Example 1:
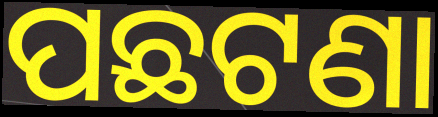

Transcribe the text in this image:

ପଛଟଣା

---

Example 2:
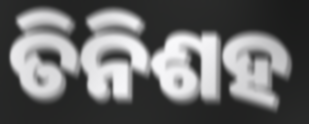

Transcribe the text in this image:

ତିନିଶହ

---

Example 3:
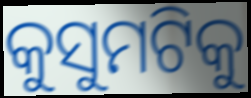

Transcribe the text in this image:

କୁସୁମଟିକୁ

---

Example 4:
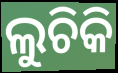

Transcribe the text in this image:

ଲୁଚିକି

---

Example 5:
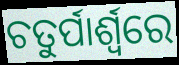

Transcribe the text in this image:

ଚତୁର୍ପାର୍ଶ୍ୱରେ